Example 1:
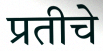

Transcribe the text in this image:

प्रतीचे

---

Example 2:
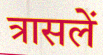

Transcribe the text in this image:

त्रासलें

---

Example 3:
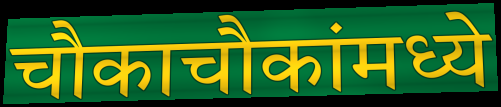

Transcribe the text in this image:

चौकाचौकांमध्ये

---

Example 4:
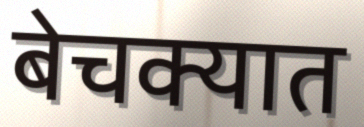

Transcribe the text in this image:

बेचक्यात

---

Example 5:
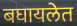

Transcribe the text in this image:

बघायलेत